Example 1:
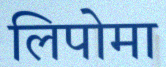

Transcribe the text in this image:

लिपोमा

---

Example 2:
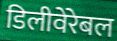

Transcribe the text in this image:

डिलीवेरेबल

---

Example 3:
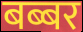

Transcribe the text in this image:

बब्बर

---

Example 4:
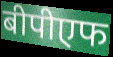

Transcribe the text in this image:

बीपीएफ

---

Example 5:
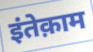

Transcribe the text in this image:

इंतेक़ाम